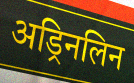
अड्रिनलिन